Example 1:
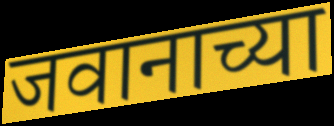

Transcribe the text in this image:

जवानाच्या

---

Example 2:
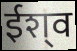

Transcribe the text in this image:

ईश्व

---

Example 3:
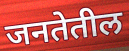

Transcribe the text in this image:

जनतेतील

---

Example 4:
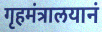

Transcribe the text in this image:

गृहमंत्रालयानं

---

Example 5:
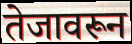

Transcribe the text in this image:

तेजावरून